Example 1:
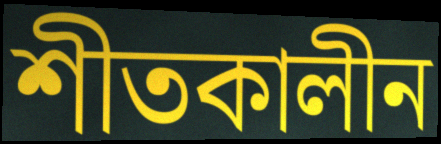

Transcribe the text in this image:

শীতকালীন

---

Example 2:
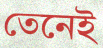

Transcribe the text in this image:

তেনেই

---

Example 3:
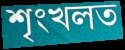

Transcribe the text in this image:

শৃংখলত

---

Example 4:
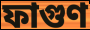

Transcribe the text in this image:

ফাগুণ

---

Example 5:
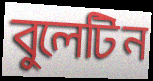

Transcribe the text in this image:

বুলেটিন